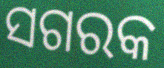
ସଗରକ